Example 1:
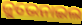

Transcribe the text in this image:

ଜୁଭେନାଇଲ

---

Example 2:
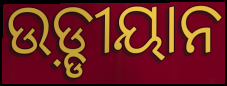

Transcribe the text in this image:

ଉଡ଼୍ଡୀୟାନ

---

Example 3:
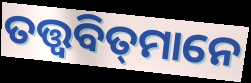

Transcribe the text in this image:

ତତ୍ତ୍ୱବିତ୍‌ମାନେ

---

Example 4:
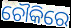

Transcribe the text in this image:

ଚୌକିରେ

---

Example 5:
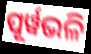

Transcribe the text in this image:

ପୂର୍ୱଭଳି